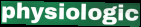
physiologic